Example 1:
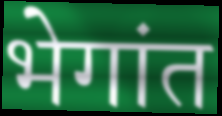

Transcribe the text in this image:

भेगांत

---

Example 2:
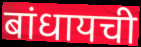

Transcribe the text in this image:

बांधायची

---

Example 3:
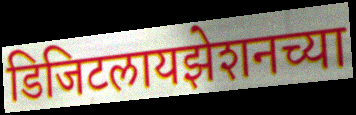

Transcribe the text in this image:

डिजिटलायझेशनच्या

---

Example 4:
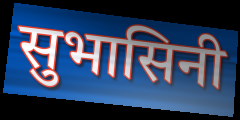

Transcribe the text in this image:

सुभासिनी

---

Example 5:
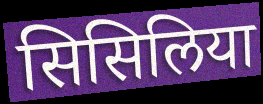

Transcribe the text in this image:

सिसिलिया